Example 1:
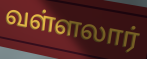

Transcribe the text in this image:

வள்ளலார்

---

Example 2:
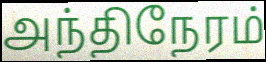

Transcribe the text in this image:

அந்திநேரம்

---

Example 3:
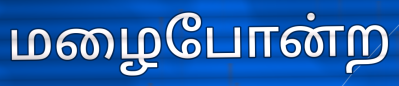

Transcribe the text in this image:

மழைபோன்ற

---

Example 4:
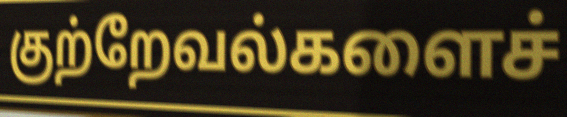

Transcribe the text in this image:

குற்றேவல்களைச்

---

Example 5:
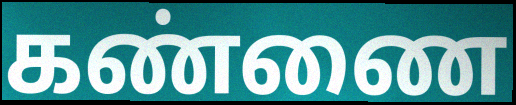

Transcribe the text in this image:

கண்ணை